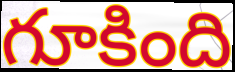
గూకింది